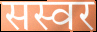
सस्वर